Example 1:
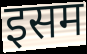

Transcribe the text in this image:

इसम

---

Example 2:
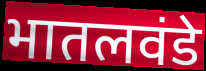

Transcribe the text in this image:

भातलवंडे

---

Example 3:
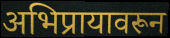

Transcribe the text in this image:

अभिप्रायावरून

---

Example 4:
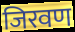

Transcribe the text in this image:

जिरवण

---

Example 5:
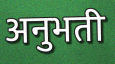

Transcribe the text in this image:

अनुभती